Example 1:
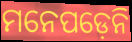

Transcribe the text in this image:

ମନେପଡ଼େନି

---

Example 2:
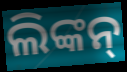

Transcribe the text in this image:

ଲିଙ୍କନ୍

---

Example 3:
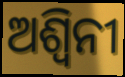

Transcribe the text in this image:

ଅଶ୍ୱିନୀ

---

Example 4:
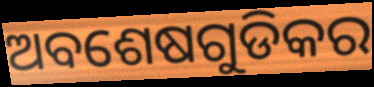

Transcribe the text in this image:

ଅବଶେଷଗୁଡିକର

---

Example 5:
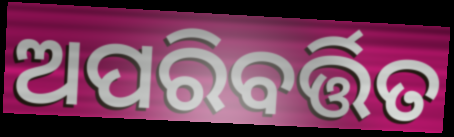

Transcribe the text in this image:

ଅପରିବର୍ତ୍ତିତ